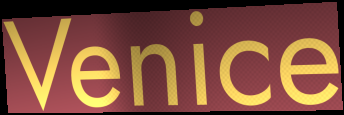
Venice